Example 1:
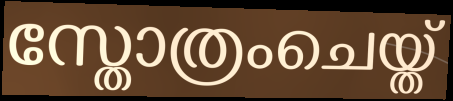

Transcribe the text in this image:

സ്തോത്രംചെയ്ത്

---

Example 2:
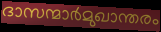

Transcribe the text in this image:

ദാസന്മാർമുഖാന്തരം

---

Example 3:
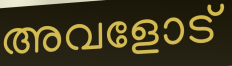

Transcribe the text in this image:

അവളോട്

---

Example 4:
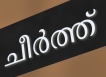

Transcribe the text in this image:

ചീർത്ത്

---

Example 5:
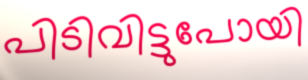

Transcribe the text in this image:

പിടിവിട്ടുപോയി